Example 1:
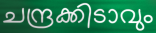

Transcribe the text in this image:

ചന്ദ്രക്കിടാവും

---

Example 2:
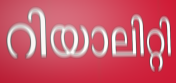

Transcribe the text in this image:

റിയാലിറ്റി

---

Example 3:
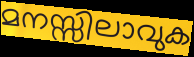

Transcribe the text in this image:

മനസ്സിലാവുക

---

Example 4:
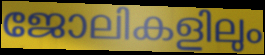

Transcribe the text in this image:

ജോലികളിലും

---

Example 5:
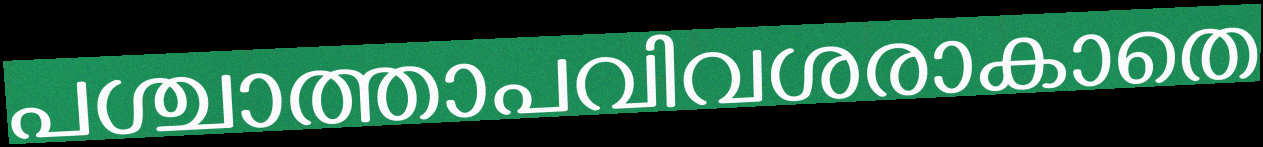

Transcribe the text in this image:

പശ്ചാത്താപവിവശരാകാതെ